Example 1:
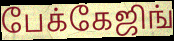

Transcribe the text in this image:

பேக்கேஜிங்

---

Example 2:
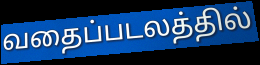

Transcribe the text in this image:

வதைப்படலத்தில்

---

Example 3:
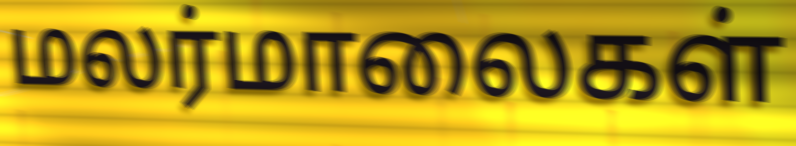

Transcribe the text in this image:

மலர்மாலைகள்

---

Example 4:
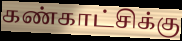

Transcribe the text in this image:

கண்காட்சிக்கு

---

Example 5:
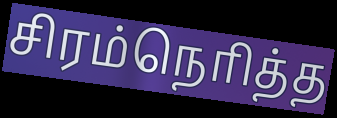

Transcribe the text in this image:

சிரம்நெரித்த